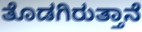
ತೊಡಗಿರುತ್ತಾನೆ